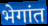
भेगांत